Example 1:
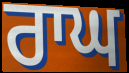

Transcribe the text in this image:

ਰਾਘ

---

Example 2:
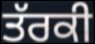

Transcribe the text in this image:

ਤੱਰਕੀ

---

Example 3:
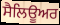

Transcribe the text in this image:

ਸੈਲਿਊਅਰ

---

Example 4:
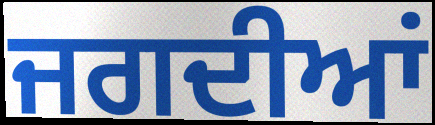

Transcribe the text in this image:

ਜਗਦੀਆਂ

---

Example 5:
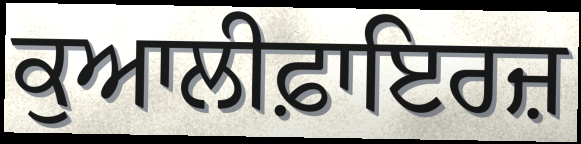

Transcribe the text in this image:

ਕੁਆਲੀਫ਼ਾਇਰਜ਼